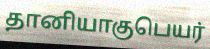
தானியாகுபெயர்